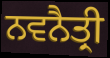
ਨਵਨੈਤ੍ਰੀ